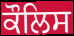
ਕੌਲਿਸ